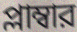
প্লাম্বার